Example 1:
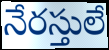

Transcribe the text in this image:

నేరస్తులే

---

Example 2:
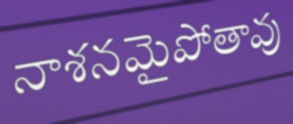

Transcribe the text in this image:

నాశనమైపోతావు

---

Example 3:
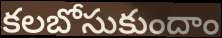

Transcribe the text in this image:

కలబోసుకుందాం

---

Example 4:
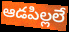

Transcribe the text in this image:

ఆడపిల్లలే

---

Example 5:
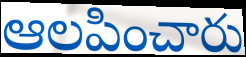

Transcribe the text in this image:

ఆలపించారు